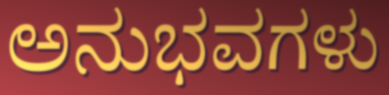
ಅನುಭವಗಳು